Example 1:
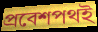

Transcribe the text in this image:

প্রবেশপথই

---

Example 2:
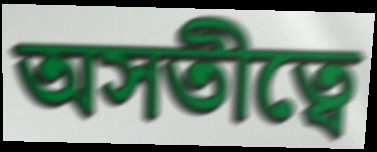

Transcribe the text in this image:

অসতীত্বে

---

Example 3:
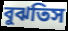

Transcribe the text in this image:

বুঝতিস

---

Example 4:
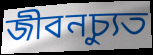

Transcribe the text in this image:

জীবনচ্যুত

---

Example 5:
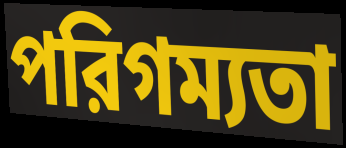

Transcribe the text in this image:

পরিগম্যতা